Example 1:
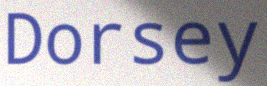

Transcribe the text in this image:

Dorsey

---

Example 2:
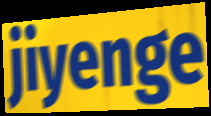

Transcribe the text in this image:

jiyenge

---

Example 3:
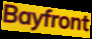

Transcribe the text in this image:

Bayfront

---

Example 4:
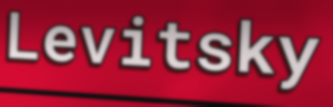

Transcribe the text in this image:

Levitsky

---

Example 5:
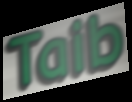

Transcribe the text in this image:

Taib